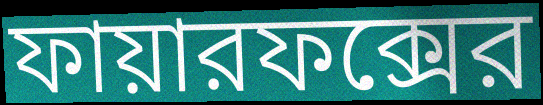
ফায়ারফক্সের